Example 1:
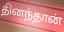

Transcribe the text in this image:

தினந்தான்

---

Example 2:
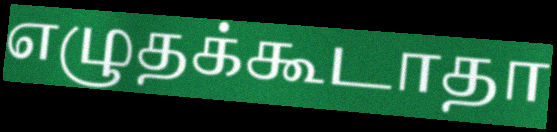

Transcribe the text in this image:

எழுதக்கூடாதா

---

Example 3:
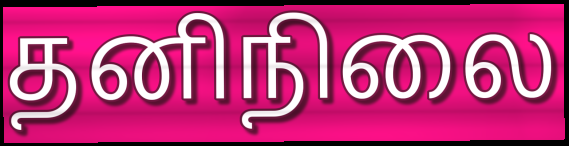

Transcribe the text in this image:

தனிநிலை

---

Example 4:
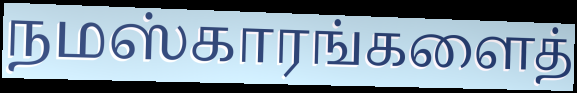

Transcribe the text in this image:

நமஸ்காரங்களைத்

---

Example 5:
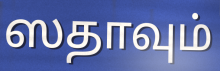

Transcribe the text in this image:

ஸதாவும்